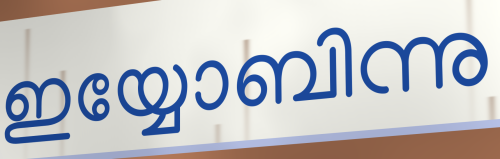
ഇയ്യോബിന്നു